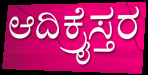
ಆದಿಕ್ರೈಸ್ತರ